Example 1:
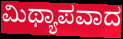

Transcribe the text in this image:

ಮಿಥ್ಯಾಪವಾದ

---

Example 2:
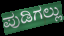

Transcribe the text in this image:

ಪುಡಿಗಲ್ಲು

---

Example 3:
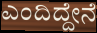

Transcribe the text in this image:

ಎಂದಿದ್ದೇನೆ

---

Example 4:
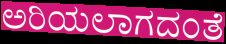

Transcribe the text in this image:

ಅರಿಯಲಾಗದಂತೆ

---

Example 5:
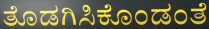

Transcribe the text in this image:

ತೊಡಗಿಸಿಕೊಂಡಂತೆ